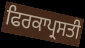
ਫਿਰਕਾਪ੍ਰਸਤੀ